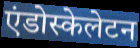
एंडोस्केलेटन